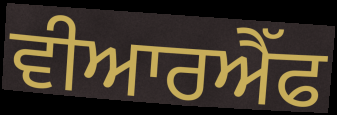
ਵੀਆਰਐੱਫ